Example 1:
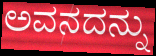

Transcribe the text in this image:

ಅವನದನ್ನು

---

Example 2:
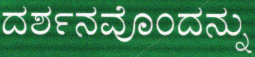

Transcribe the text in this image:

ದರ್ಶನವೊಂದನ್ನು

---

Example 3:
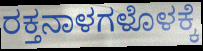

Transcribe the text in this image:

ರಕ್ತನಾಳಗಳೊಳಕ್ಕೆ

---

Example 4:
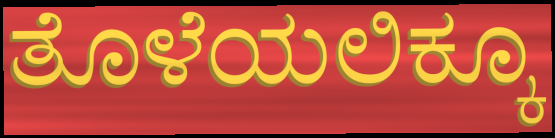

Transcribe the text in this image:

ತೊಳೆಯಲಿಕ್ಕೂ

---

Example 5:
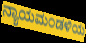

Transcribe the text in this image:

ನ್ಯಾಯಮಂಡಳಿಯ